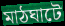
মাঠঘাটে